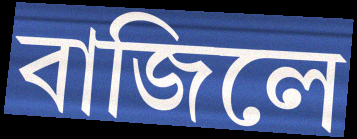
বাজিলে